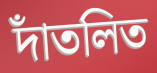
দাঁতলিত